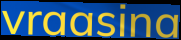
vraasina